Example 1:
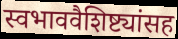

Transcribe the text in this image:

स्वभाववैशिष्ट्यांसह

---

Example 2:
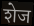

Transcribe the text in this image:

शेज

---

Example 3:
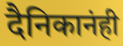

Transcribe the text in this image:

दैनिकानंही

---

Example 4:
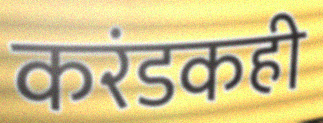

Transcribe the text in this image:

करंडकही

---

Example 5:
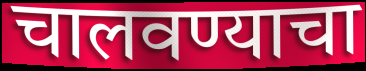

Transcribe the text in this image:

चालवण्याचा